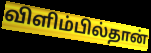
விளிம்பில்தான்